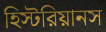
হিস্টরিয়ানস